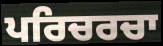
ਪਰਿਚਰਚਾ